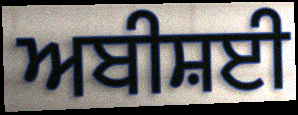
ਅਬੀਸ਼ਈ